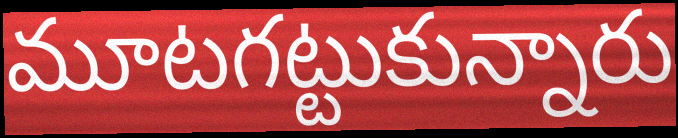
మూటగట్టుకున్నారు